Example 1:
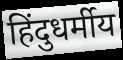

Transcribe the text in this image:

हिंदुधर्मीय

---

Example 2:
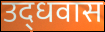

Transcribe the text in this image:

उद्धवास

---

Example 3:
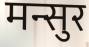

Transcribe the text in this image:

मन्सुर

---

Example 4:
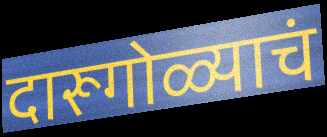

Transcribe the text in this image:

दारूगोळ्याचं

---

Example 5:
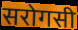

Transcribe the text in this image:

सरोगसी